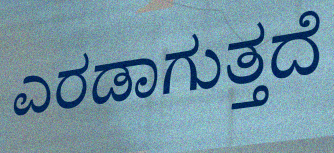
ಎರಡಾಗುತ್ತದೆ